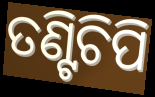
ତଣ୍ଟିଚିପି